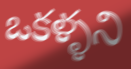
ఒకళ్ళని